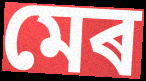
মেৰ